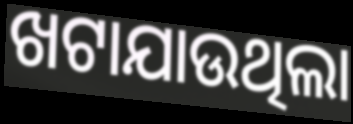
ଖଟାଯାଉଥିଲା